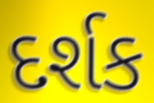
દર્શક